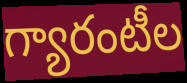
గ్యారంటీల